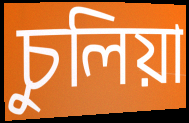
চুলিয়া